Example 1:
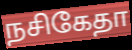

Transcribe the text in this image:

நசிகேதா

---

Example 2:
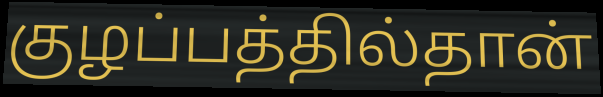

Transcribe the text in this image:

குழப்பத்தில்தான்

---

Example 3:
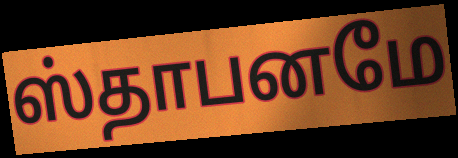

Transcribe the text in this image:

ஸ்தாபனமே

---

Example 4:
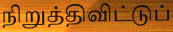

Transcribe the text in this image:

நிறுத்திவிட்டுப்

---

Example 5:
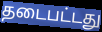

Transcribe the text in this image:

தடைபட்டது